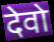
देवो